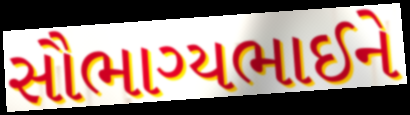
સૌભાગ્યભાઈને